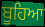
ਬੂਹਿਆ